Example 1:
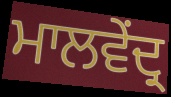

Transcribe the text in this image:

ਮਾਲਵੇਂਦ੍ਰ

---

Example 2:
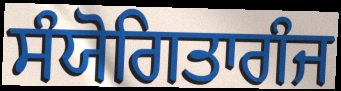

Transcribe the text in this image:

ਸੰਯੋਗਿਤਾਗੰਜ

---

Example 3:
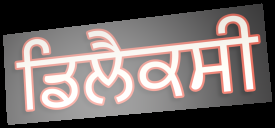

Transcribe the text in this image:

ਡਿਲੈਕਸੀ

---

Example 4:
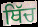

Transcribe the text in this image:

ਥਿੱਚ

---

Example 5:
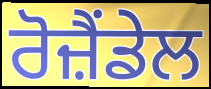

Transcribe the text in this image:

ਰੋਜ਼ੈਂਡੇਲ